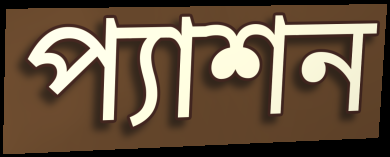
প্যাশন